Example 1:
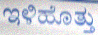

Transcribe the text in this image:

ಇಳಿಹೊತ್ತು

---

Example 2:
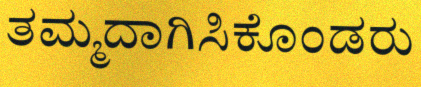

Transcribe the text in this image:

ತಮ್ಮದಾಗಿಸಿಕೊಂಡರು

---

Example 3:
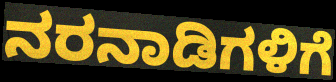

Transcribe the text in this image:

ನರನಾಡಿಗಳಿಗೆ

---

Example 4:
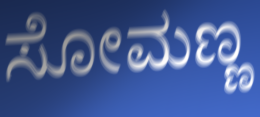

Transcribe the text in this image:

ಸೋಮಣ್ಣ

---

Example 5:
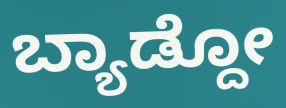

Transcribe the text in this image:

ಬ್ಯಾಡ್ದೋ